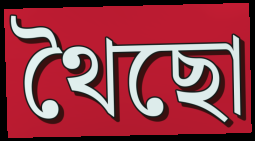
থৈছো